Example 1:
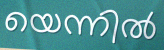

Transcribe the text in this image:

യെന്നിൽ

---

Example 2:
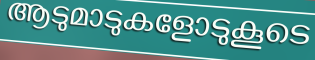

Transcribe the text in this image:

ആടുമാടുകളോടുകൂടെ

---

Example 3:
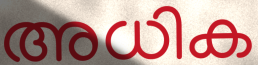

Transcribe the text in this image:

അധിക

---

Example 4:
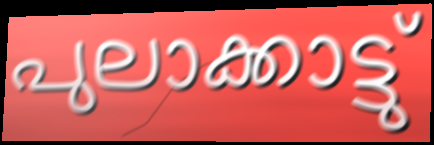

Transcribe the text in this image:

പുലാക്കാട്ടു്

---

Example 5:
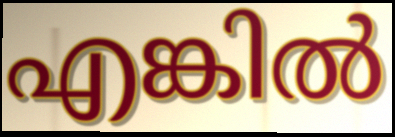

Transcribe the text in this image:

എങ്കിൽ